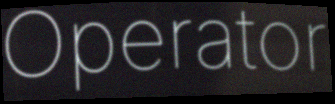
Operator